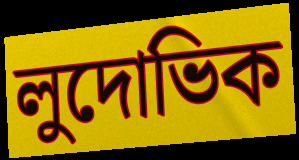
লুদোভিক